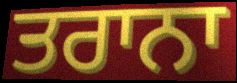
ਤਰਾਨਾ